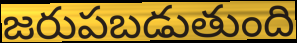
జరుపబడుతుంది